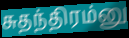
சுதந்திரம்னு